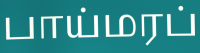
பாய்மரப்